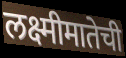
लक्ष्मीमातेची